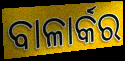
ବାଳାର୍କର